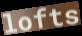
lofts